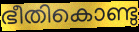
ഭീതികൊണ്ടു